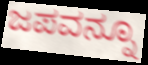
ಜಪವನ್ನೂ